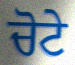
ਚੋਟੇ